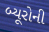
બ્યૂરોની